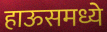
हाऊसमध्ये